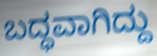
ಬದ್ಧವಾಗಿದ್ದು